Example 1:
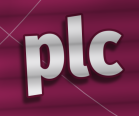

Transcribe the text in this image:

plc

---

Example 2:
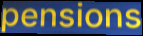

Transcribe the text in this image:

pensions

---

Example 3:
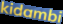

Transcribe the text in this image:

kidambi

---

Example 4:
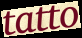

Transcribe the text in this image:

tatto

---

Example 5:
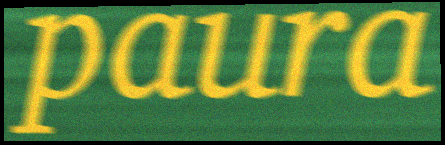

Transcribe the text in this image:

paura